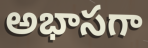
అభాసగా